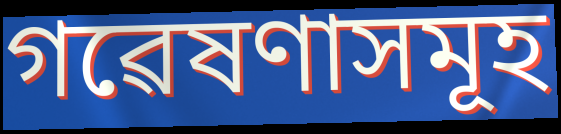
গৱেষণাসমূহ